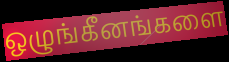
ஒழுங்கீனங்களை